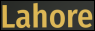
Lahore